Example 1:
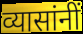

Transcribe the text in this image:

व्यासांनीं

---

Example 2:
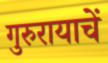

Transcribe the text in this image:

गुरुरायाचें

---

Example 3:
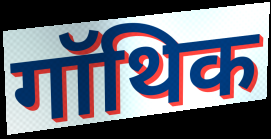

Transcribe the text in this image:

गॉथिक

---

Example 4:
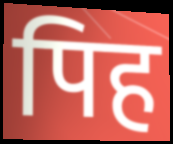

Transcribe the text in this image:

पिह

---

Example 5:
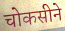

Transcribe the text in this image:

चोकसीने